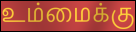
உம்மைக்கு